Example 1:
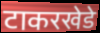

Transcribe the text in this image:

टाकरखेडे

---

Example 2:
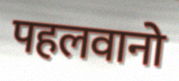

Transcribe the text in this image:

पहलवानो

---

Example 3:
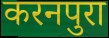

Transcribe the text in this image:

करनपुरा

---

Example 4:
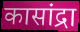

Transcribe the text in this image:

कासांद्रा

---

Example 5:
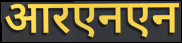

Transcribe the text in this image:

आरएनएन